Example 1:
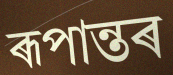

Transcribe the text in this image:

ৰূপান্তৰ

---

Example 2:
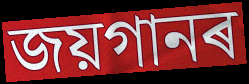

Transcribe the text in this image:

জয়গানৰ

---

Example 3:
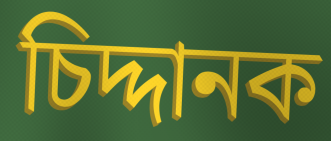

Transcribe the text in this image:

চিদ্দানক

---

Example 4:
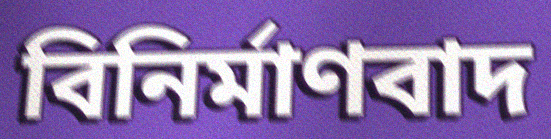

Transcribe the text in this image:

বিনিৰ্মাণবাদ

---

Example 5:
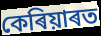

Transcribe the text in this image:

কেৰিয়াৰত